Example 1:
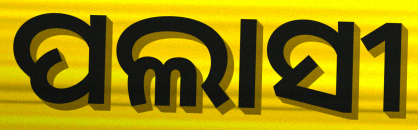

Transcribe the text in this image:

ପଲାସୀ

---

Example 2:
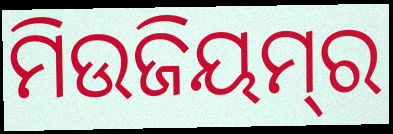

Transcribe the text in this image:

ମିଉଜିୟମ୍‌ର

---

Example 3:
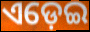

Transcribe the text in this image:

ଏଡ଼େଇ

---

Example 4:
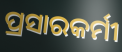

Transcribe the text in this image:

ପ୍ରସାରକର୍ମୀ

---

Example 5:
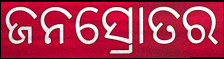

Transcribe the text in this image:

ଜନସ୍ରୋତର